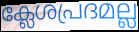
ക്ലേശപ്രദമല്ല